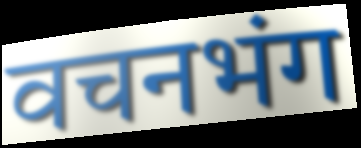
वचनभंग